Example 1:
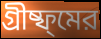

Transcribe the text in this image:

গ্রীষ্ফ্মের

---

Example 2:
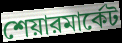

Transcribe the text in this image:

শেয়ারমার্কেট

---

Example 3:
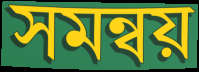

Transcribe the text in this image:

সমন্বয়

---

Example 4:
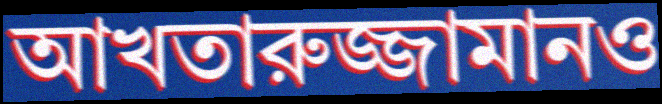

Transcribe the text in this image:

আখতারুজ্জামানও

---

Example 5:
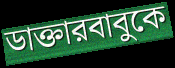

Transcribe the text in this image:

ডাক্তারবাবুকে